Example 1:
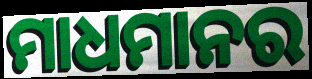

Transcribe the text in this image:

ମାଧମାନର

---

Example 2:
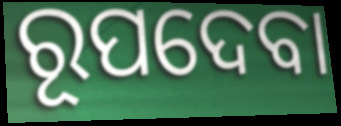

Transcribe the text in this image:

ରୂପଦେବା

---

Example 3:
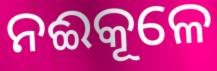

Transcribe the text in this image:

ନଈକୂଳେ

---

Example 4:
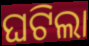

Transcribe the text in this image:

ଘଟିଲା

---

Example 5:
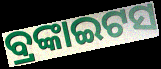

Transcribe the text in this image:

ବ୍ରଙ୍କାଇଟସ